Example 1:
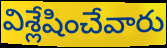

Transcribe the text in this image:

విశ్లేషించేవారు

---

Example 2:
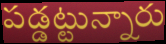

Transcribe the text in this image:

పడ్డట్టున్నారు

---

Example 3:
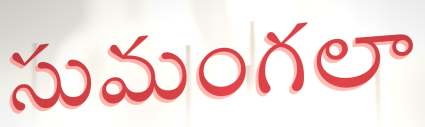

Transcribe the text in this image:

సుమంగలా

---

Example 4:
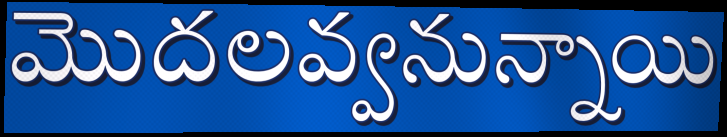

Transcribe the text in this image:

మొదలవ్వనున్నాయి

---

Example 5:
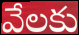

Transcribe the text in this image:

వేలకు